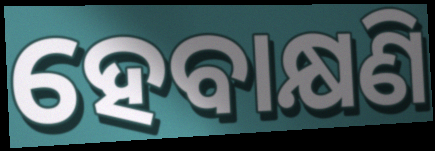
ହେବାକ୍ଷଣି